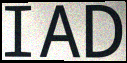
IAD